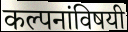
कल्पनांविषयी